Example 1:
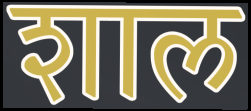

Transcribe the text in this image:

शाल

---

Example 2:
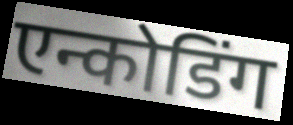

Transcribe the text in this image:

एन्कोडिंग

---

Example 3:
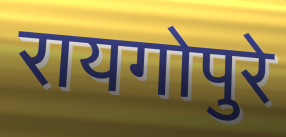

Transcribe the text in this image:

रायगोपुरे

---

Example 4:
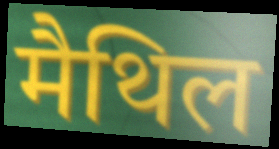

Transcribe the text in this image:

मैथिल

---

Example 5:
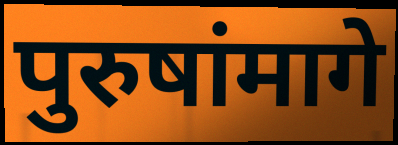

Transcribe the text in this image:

पुरुषांमागे